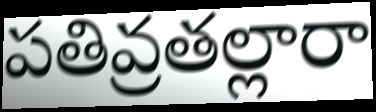
పతివ్రతల్లారా